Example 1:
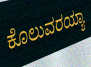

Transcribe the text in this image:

ಕೊಲುವರಯ್ಯಾ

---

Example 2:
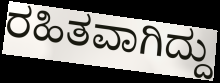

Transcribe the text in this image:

ರಹಿತವಾಗಿದ್ದು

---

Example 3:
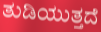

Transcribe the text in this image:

ತುಡಿಯುತ್ತದೆ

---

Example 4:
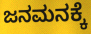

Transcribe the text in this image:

ಜನಮನಕ್ಕೆ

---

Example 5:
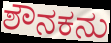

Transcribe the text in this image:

ಶೌನಕನು